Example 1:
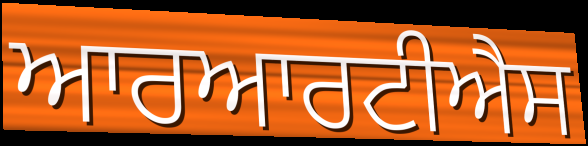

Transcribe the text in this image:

ਆਰਆਰਟੀਐਸ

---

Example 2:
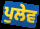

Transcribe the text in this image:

ਪੁਲੇਵ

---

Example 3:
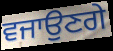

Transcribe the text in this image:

ਵਜਾਉਣਗੇ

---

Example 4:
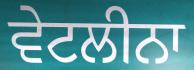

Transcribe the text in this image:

ਵੇਟਲੀਨਾ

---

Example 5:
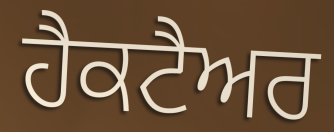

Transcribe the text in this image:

ਹੈਕਟੈਅਰ